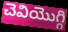
చెవియొగ్గి